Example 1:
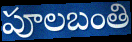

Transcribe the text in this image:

పూలబంతి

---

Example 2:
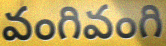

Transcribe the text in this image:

వంగివంగి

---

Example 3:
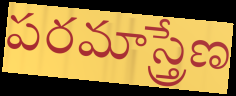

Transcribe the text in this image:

పరమాస్త్రేణ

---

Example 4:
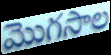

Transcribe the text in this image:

మొగసాల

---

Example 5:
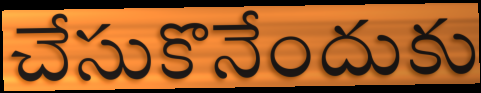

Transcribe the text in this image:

చేసుకొనేందుకు